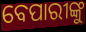
ବେପାରୀଙ୍କୁ